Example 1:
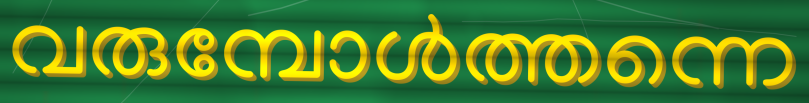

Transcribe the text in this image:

വരുമ്പോൾത്തന്നെ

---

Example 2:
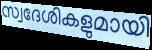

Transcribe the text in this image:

സ്വദേശികളുമായി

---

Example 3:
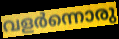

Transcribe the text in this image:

വളർന്നൊരു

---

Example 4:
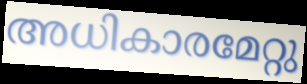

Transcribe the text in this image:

അധികാരമേറ്റു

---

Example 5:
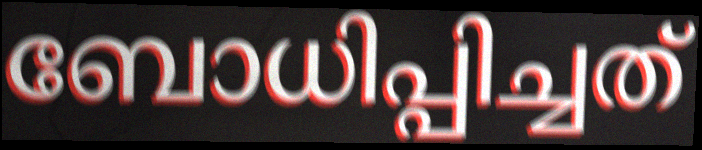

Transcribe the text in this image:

ബോധിപ്പിച്ചത്